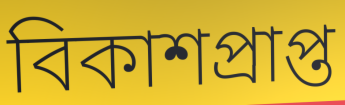
বিকাশপ্রাপ্ত